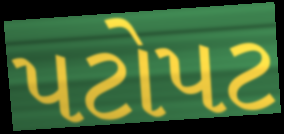
પટોપટ